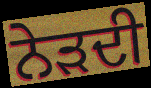
ਨੇੜਦੀ